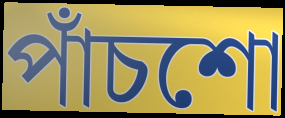
পাঁচশো